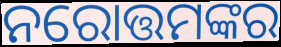
ନରୋତ୍ତମଙ୍କର